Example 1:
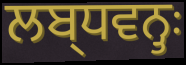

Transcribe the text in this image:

ਲਬ੍ਧਵਨ੍ਤਃ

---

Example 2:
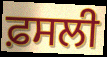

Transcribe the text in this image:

ਫ਼ਸਲੀ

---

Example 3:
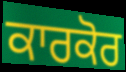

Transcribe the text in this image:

ਕਾਰਕੋਰ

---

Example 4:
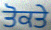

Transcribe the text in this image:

ਤੋਕਤੇ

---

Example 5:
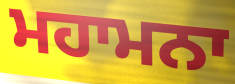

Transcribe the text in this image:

ਮਹਾਮਨਾ